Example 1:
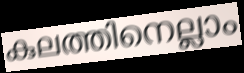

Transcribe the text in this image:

കുലത്തിനെല്ലാം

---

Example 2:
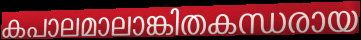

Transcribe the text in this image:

കപാലമാലാങ്കിതകന്ധരായ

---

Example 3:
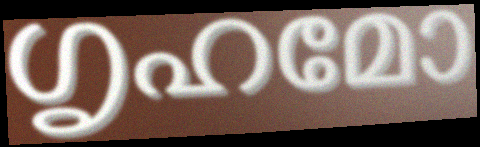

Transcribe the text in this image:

ഗൃഹമോ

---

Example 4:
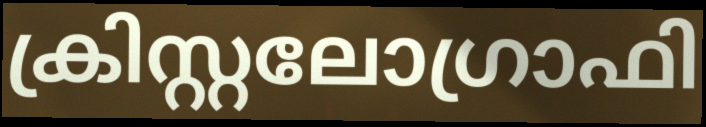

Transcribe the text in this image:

ക്രിസ്റ്റലോഗ്രാഫി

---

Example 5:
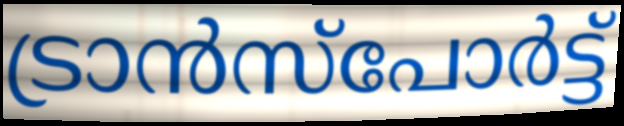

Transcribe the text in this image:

ട്രാൻസ്പോർട്ട്